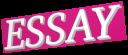
ESSAY